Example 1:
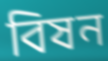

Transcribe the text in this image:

বিষন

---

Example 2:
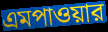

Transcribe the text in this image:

এমপাওয়ার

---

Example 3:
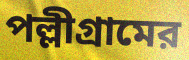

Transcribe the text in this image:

পল্লীগ্রামের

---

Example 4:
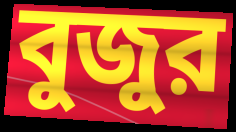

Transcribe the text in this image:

বুজুর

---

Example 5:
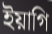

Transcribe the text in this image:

ইয়াগি